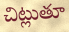
చిట్లుతూ